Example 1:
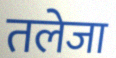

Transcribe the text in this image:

तलेजा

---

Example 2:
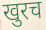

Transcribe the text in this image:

खुरच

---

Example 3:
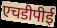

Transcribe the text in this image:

एचडीपीई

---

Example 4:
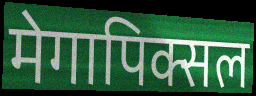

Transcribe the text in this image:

मेगापिक्सल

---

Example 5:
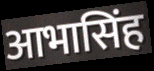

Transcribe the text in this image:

आभासिंह